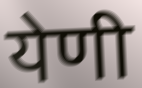
येणी